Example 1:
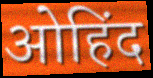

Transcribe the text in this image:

ओहिंद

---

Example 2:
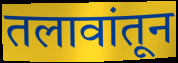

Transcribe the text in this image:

तलावांतून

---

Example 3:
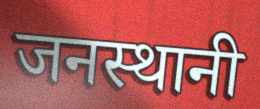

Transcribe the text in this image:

जनस्थानी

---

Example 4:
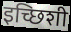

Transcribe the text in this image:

इच्छिशी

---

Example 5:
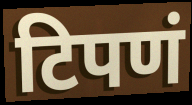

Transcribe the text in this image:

टिपणं